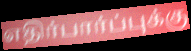
எதிர்பார்ப்புக்கு